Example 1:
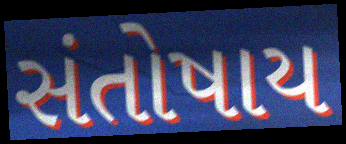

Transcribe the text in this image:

સંતોષાય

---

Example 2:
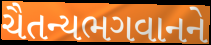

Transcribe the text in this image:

ચૈતન્યભગવાનને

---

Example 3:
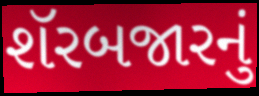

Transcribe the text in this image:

શૅરબજારનું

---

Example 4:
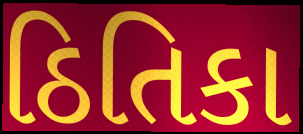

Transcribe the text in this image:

ઠિતિકા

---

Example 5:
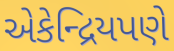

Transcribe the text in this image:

એકેન્દ્રિયપણે